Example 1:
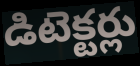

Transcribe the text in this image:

డిటెక్టర్లు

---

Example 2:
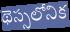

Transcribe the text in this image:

థెస్సలోనిక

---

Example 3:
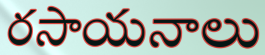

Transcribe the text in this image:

రసాయనాలు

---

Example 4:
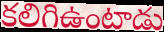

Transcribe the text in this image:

కలిగిఉంటాడు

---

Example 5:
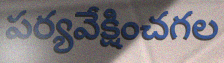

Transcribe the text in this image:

పర్యవేక్షించగల